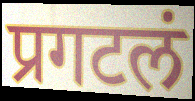
प्रगटलं